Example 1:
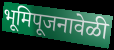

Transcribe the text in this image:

भूमिपूजनावेळी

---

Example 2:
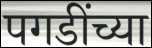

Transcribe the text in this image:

पगडींच्या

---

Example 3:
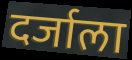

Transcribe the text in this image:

दर्जाला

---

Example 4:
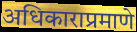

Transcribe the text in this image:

अधिकाराप्रमाणे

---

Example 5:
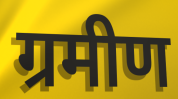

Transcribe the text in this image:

ग्रमीण